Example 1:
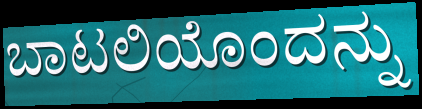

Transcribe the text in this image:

ಬಾಟಲಿಯೊಂದನ್ನು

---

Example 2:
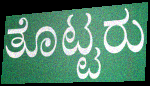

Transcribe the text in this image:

ತೊಟ್ಟರು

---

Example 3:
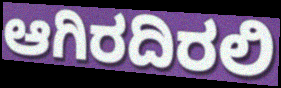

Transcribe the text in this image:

ಆಗಿರದಿರಲಿ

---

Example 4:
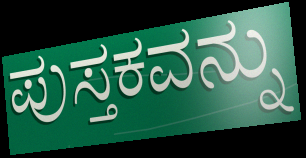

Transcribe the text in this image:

ಪುಸ್ತಕವನ್ನು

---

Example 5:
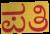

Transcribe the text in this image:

ಪತಿ